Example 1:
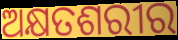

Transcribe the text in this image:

ଅକ୍ଷତଶରୀର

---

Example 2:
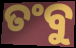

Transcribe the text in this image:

ତଂବୁ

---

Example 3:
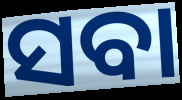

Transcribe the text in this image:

ସବା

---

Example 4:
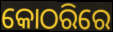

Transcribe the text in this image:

କୋଠରିରେ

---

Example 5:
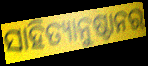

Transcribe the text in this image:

ସାହିତ୍ୟାନୁଷ୍ଠାନର